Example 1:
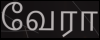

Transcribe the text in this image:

வேரா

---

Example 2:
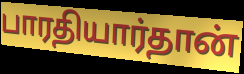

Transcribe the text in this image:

பாரதியார்தான்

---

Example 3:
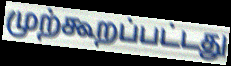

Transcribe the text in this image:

முற்கூறப்பட்டது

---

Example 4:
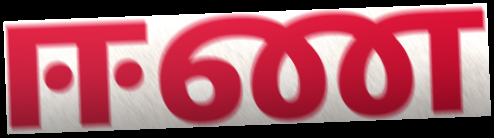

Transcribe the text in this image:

ஈண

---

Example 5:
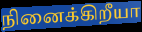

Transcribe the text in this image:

நினைக்கிறீயா